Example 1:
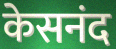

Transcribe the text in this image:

केसनंद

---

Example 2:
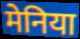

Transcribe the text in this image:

मेनिया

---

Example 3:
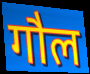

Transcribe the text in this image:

गौल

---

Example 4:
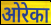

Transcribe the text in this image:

ओरेका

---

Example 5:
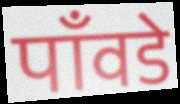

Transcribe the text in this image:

पाँवडे